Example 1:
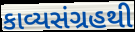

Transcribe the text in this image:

કાવ્યસંગ્રહથી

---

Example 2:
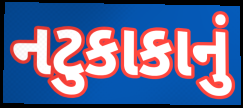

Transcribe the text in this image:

નટુકાકાનું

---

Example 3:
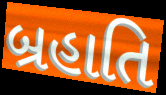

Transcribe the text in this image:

બ્રહાતિ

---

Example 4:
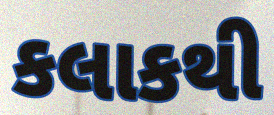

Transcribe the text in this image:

કલાકથી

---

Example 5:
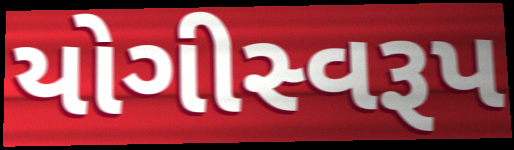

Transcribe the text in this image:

યોગીસ્વરૂપ